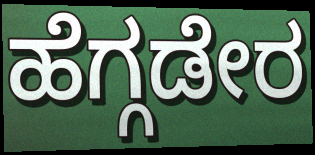
ಹೆಗ್ಗಡೇರ